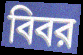
বিবর